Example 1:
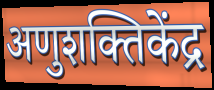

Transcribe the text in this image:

अणुशक्तिकेंद्र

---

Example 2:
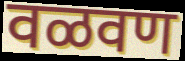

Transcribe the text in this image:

वळवण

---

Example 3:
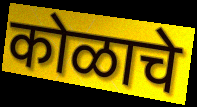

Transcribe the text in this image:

कोळाचे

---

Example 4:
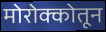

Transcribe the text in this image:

मोरोक्कोतून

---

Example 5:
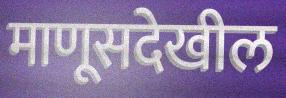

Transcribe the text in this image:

माणूसदेखील